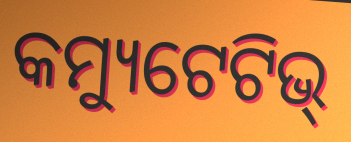
କମ୍ୟୁଟେଟିଭ୍